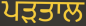
ਪੜਤਾਲ